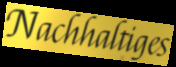
Nachhaltiges